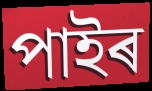
পাইৰ